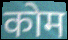
कोम